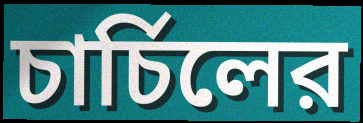
চার্চিলের